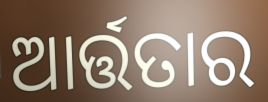
ଆର୍ତ୍ତତାର